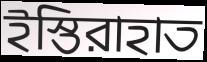
ইস্তিরাহাত